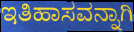
ಇತಿಹಾಸವನ್ನಾಗಿ